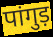
पांगुड़